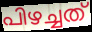
പിഴച്ചത്